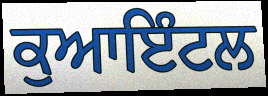
ਕੁਆਇੰਟਲ